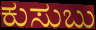
ಕುಸುಬು